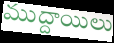
ముద్దాయిలు